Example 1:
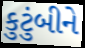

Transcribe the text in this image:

કુટુંબીને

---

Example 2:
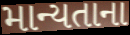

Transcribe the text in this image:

માન્યતાના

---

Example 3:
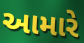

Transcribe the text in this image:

આમારે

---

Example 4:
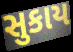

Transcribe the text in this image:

સુકાય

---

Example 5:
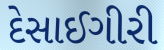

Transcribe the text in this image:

દેસાઈગીરી